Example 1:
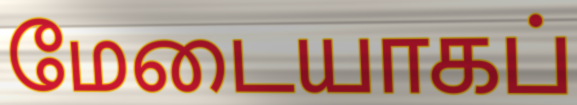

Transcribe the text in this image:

மேடையாகப்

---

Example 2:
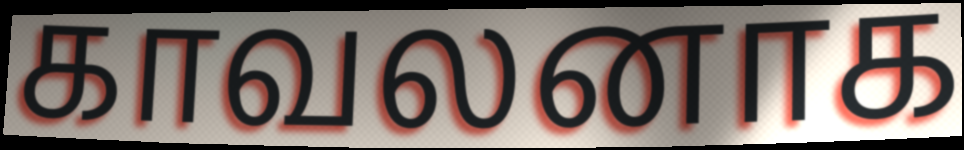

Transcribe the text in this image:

காவலனாக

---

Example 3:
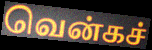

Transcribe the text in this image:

வென்கச்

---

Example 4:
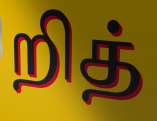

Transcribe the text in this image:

றித்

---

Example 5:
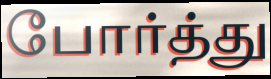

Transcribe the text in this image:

போர்த்து